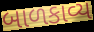
બાળકાવ્ય